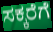
ಸಕ್ಕರೆಗೆ